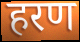
हरण